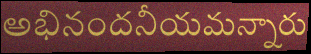
అభినందనీయమన్నారు